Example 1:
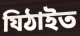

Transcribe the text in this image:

যিঠাইত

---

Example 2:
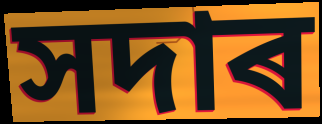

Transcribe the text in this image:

সদাৰ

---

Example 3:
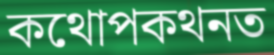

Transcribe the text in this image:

কথোপকথনত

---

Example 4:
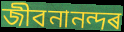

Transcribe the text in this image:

জীবনানন্দৰ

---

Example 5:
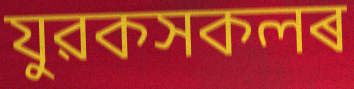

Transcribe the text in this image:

যুৱকসকলৰ